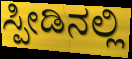
ಸ್ಪೀಡಿನಲ್ಲಿ